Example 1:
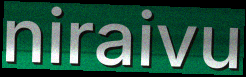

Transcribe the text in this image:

niraivu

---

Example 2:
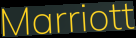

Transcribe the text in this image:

Marriott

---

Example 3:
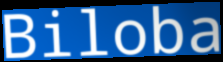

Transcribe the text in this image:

Biloba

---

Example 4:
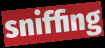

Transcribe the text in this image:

sniffing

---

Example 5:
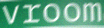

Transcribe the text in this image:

vroom